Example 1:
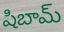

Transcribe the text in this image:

షిబామ్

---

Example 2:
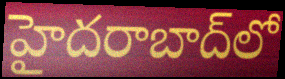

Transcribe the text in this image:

హైదరాబాద్‌లో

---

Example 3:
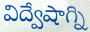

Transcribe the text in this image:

విద్వేషాగ్ని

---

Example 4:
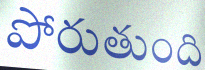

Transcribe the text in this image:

పోరుతుంది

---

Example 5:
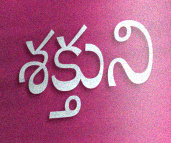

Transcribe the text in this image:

శక్తుని